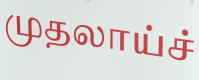
முதலாய்ச்